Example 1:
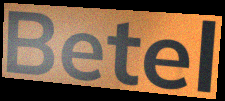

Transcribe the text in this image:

Betel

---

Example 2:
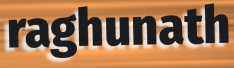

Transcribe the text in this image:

raghunath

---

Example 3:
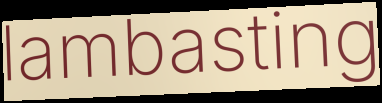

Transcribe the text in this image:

lambasting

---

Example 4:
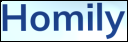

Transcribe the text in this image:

Homily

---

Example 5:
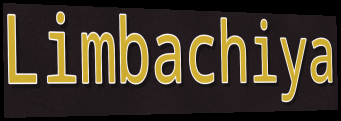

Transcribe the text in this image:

Limbachiya